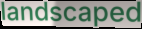
landscaped